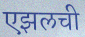
एझलची